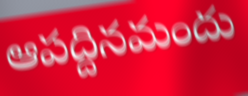
ఆపద్దినమందు